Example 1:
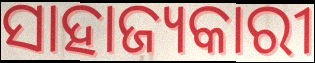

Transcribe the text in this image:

ସାହାଜ୍ଯକାରୀ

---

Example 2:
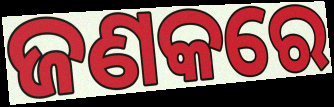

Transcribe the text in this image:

ଜଣକରେ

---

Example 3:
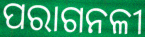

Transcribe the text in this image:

ପରାଗନଳୀ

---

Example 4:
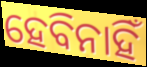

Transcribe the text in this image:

ହେବିନାହିଁ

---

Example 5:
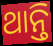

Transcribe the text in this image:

ଥାନ୍ତି